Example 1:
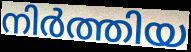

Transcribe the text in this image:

നിർത്തിയ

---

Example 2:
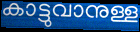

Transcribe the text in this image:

കാട്ടുവാനുള്ള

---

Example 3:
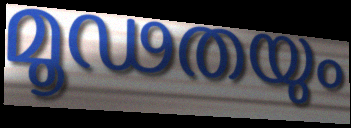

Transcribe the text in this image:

മൂഢതയും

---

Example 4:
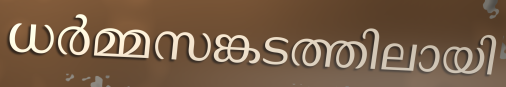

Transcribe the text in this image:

ധർമ്മസങ്കടത്തിലായി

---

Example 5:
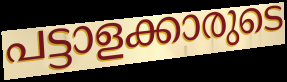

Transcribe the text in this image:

പട്ടാളക്കാരുടെ